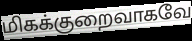
மிகக்குறைவாகவே